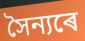
সৈন্যৰে